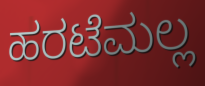
ಹರಟೆಮಲ್ಲ